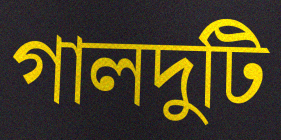
গালদুটি